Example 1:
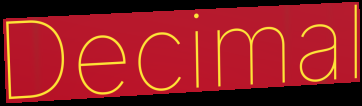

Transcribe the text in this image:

Decimal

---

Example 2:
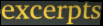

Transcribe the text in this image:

excerpts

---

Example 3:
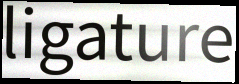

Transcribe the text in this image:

ligature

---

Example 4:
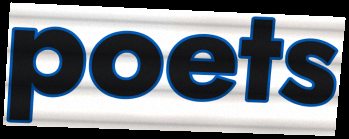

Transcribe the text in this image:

poets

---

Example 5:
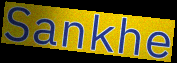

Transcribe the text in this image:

Sankhe